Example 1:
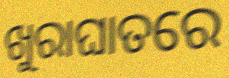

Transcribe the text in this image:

ଖୁରାଘାତରେ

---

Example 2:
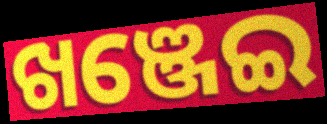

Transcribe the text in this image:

ଖଞ୍ଜେଇ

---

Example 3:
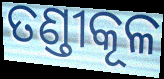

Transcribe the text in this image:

ତଣ୍ଡୀକୂଳ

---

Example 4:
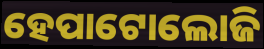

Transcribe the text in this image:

ହେପାଟୋଲୋଜି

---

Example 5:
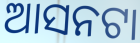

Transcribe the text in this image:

ଆସନଟା